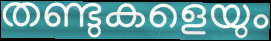
തണ്ടുകളെയും